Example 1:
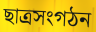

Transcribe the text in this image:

ছাত্রসংগঠন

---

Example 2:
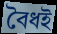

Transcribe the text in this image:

বৈধই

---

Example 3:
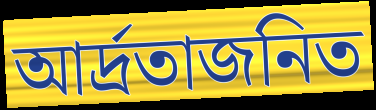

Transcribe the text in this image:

আর্দ্রতাজনিত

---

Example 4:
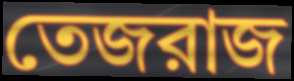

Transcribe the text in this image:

তেজরাজ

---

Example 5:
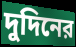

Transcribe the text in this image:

দুদিনের